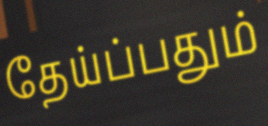
தேய்ப்பதும்